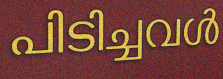
പിടിച്ചവൾ